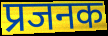
प्रजनक